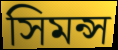
সিমন্স